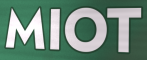
MIOT